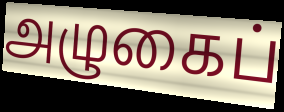
அழுகைப்